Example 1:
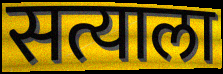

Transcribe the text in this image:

सत्याला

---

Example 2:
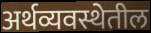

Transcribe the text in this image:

अर्थव्यवस्थेतील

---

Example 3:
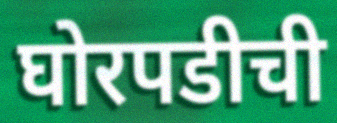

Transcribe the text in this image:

घोरपडीची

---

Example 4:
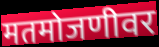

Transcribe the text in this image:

मतमोजणीवर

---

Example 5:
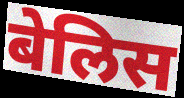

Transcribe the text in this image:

बेलिस